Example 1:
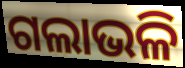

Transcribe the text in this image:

ଗଲାଭଳି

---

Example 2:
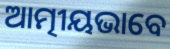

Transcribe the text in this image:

ଆତ୍ମୀୟଭାବେ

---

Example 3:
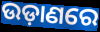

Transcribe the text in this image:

ଉଡ଼ାଣରେ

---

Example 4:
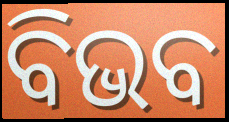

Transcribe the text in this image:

ବିଭବ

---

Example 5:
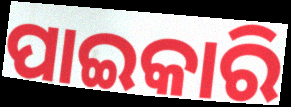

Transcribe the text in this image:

ପାଇକାରି